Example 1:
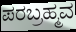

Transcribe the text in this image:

ಪರಬ್ರಹ್ಮವ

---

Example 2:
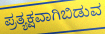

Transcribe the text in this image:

ಪ್ರತ್ಯಕ್ಷವಾಗಿಬಿಡುವ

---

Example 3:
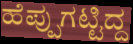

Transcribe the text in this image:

ಹೆಪ್ಪುಗಟ್ಟಿದ್ದ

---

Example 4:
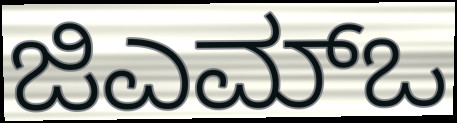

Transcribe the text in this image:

ಜಿಎಮ್ಒ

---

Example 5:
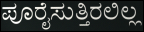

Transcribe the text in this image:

ಪೂರೈಸುತ್ತಿರಲಿಲ್ಲ